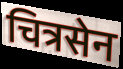
चित्रसेन